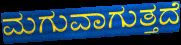
ಮಗುವಾಗುತ್ತದೆ